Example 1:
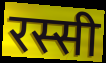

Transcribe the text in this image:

रस्सी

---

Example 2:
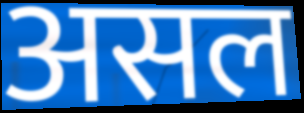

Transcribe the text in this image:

असल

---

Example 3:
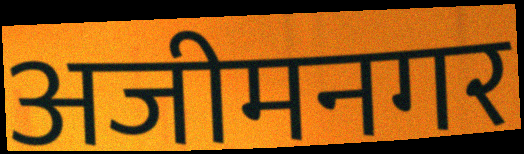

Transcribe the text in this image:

अजीमनगर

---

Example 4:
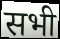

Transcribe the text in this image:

सभी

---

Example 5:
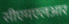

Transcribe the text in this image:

सीएमएलआर